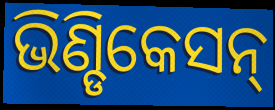
ଭିଣ୍ଡିକେସନ୍